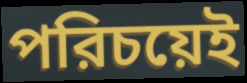
পরিচয়েই